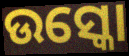
ଉସ୍କୋ